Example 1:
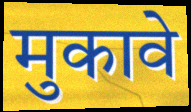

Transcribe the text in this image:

मुकावे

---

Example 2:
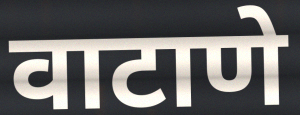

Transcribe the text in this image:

वाटाणे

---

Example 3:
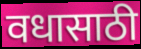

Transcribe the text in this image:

वधासाठी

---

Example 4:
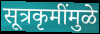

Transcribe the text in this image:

सूत्रकृमींमुळे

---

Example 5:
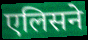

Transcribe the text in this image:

एलिसने